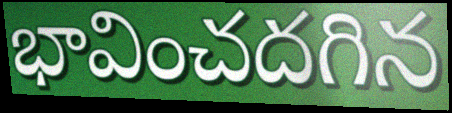
భావించదగిన